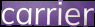
carrier